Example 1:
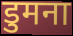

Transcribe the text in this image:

डुमना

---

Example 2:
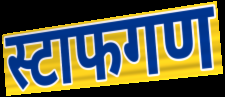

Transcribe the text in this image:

स्टाफगण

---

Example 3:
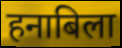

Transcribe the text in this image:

हनाबिला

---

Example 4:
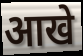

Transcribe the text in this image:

आखे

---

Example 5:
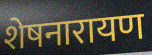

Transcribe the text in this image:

शेषनारायण